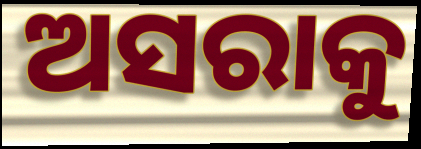
ଅସରାକୁ